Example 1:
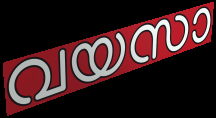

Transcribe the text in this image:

വയസാ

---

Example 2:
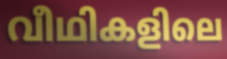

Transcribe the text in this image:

വീഥികളിലെ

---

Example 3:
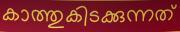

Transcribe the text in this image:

കാത്തുകിടക്കുന്നത്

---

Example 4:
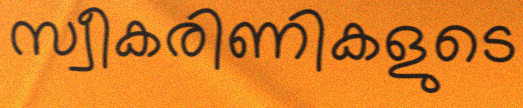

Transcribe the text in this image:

സ്വീകരിണികളുടെ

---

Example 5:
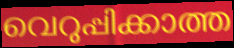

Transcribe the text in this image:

വെറുപ്പിക്കാത്ത